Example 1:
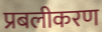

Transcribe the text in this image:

प्रबलीकरण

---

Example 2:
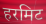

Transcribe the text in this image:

हरमिट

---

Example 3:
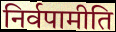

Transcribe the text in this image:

निर्वपामीति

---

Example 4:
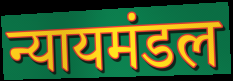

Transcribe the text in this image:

न्यायमंडल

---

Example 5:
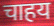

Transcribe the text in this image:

चाहय